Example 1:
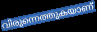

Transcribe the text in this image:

വിരുന്നെത്തുകയാണ്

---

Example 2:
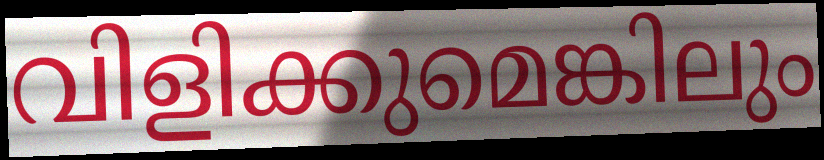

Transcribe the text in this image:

വിളിക്കുമെങ്കിലും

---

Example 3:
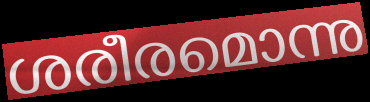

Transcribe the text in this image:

ശരീരമൊന്നു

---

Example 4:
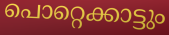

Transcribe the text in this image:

പൊറ്റെക്കാട്ടും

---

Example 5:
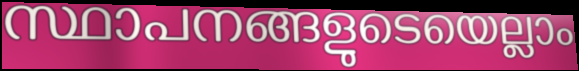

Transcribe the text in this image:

സ്ഥാപനങ്ങളുടെയെല്ലാം